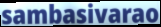
sambasivarao